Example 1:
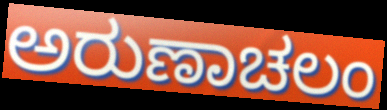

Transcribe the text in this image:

ಅರುಣಾಚಲಂ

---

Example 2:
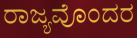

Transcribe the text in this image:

ರಾಜ್ಯವೊಂದರ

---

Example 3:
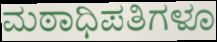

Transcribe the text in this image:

ಮಠಾಧಿಪತಿಗಳೂ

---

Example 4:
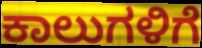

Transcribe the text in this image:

ಕಾಲುಗಳಿಗೆ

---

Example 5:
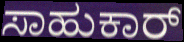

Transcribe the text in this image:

ಸಾಹುಕಾರ್